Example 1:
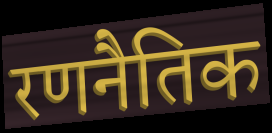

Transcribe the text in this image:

रणनैतिक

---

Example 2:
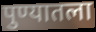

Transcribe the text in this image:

पुण्यातला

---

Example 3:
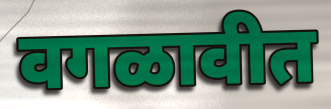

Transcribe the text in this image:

वगळावीत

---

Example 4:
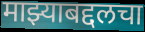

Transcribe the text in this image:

माझ्याबद्दलचा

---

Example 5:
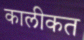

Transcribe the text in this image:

कालीकत